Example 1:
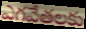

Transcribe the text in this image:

ఎగవేతలకు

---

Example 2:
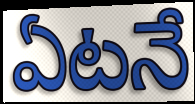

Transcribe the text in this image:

ఏటనే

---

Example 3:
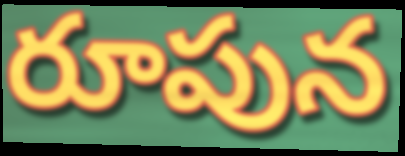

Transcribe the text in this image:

రూపున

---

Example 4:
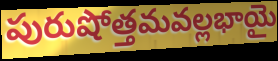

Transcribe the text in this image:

పురుషోత్తమవల్లభాయై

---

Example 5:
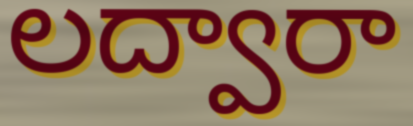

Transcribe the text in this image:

లద్వారా